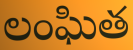
లంఘిత